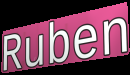
Ruben